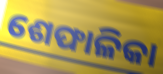
ଶେଫାଳିକା